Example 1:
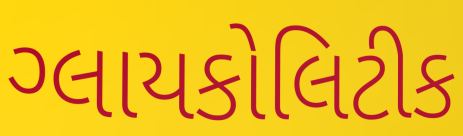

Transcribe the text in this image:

ગ્લાયકોલિટીક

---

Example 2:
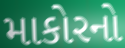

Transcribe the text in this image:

માકોરનો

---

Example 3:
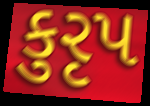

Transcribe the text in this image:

કુરૃપ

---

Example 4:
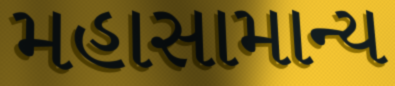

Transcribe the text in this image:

મહાસામાન્ય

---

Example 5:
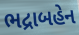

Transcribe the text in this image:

ભદ્રાબહેન